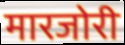
मारजोरी